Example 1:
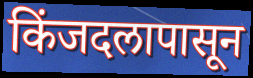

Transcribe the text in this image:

किंजदलापासून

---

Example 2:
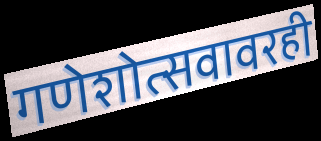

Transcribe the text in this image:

गणेशोत्सवावरही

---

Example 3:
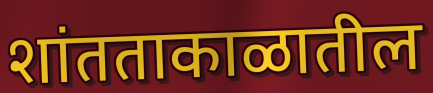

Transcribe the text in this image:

शांतताकाळातील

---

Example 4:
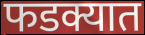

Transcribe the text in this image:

फडक्यात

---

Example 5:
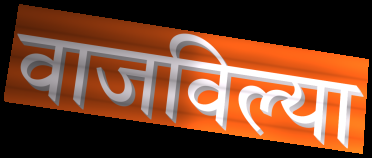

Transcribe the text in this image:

वाजविल्या